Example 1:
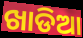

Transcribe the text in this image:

ଖାଡିଆ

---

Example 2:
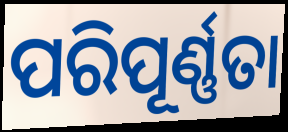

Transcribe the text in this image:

ପରିପୂର୍ଣ୍ଣତା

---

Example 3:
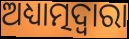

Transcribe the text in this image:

ଅଧ୍ୟାତ୍ମଦ୍ୱାରା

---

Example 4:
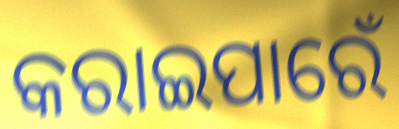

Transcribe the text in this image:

କରାଇପାରେଁ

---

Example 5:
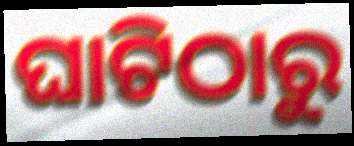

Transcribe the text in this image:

ଘାଟିଠାରୁ